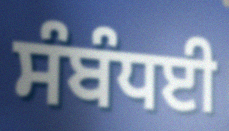
ਸੰਬੰਧਈ